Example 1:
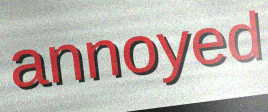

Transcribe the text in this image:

annoyed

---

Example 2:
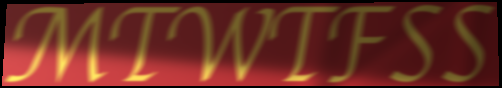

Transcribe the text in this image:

MTWTFSS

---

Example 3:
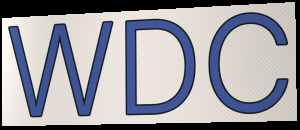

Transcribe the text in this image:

WDC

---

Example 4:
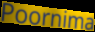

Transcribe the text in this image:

Poornima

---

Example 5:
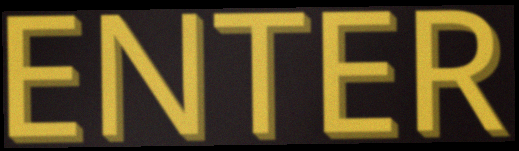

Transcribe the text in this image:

ENTER